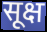
सूक्ष